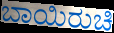
ಬಾಯಿರುಚಿ